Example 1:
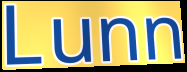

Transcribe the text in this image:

Lunn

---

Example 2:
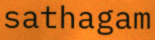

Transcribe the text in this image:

sathagam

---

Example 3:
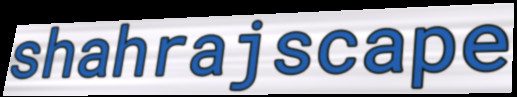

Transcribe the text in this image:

shahrajscape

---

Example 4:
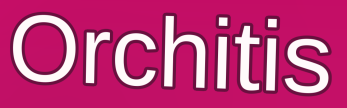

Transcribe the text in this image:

Orchitis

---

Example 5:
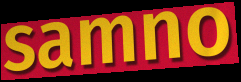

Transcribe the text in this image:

samno